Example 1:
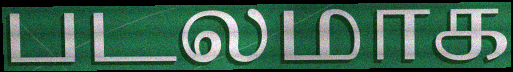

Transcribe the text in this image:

படலமாக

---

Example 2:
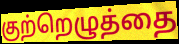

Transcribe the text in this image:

குற்றெழுத்தை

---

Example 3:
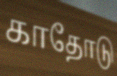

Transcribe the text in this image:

காதோடு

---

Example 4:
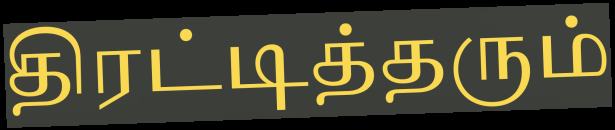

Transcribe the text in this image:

திரட்டித்தரும்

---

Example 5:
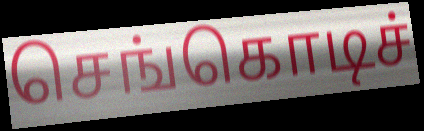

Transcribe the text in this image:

செங்கொடிச்